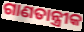
ଗାଣତାନ୍ତ୍ରୀକ